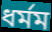
ধর্মম